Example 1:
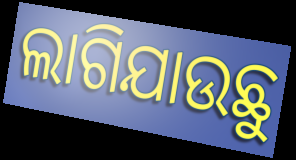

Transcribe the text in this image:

ଲାଗିଯାଉଛୁ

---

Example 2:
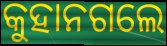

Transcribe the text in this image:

କୁହାନଗଲେ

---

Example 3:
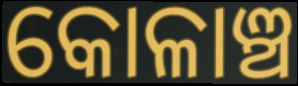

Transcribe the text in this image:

କୋଳାଞ୍ଚ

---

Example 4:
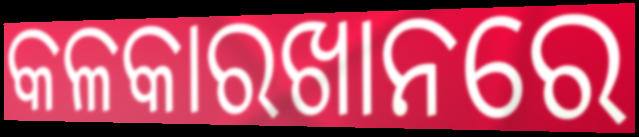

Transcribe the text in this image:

କଳକାରଖାନରେ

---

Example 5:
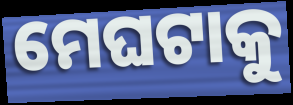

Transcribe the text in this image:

ମେଘଟାକୁ